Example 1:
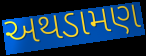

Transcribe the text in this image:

અથડામણ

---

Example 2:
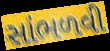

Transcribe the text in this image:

સાંભળવી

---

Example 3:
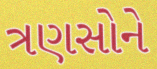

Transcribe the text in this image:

ત્રણસોને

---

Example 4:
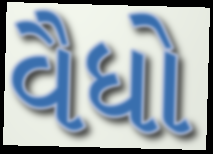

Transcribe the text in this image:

વૈધો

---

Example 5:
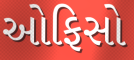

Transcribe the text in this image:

ઓફિસો